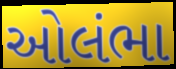
ઓલંભા